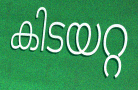
കിടയറ്റ